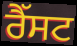
ਰੈੱਸਟ